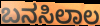
ಬನಸಿಲಾಲ